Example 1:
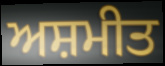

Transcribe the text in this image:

ਅਸ਼ਮੀਤ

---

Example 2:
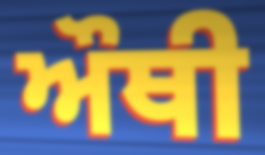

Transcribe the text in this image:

ਔਥੀ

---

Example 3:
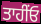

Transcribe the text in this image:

ਤਾਹੀਂਓ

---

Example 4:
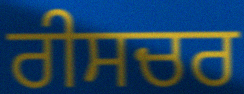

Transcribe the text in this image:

ਰੀਸਚਰ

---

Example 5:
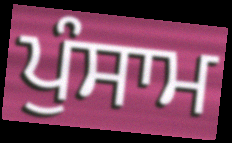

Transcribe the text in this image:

ਪੁੰਸਾਮ